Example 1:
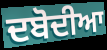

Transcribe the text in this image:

ਦਬੋਦੀਆ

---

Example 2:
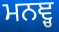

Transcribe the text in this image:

ਮਨਞ੍ਚ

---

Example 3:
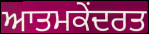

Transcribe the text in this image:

ਆਤਮਕੇਂਦਰਤ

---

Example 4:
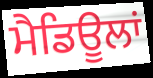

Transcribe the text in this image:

ਮੈਡਿਊਲਾਂ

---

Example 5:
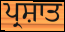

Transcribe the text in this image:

ਪ੍ਰਸ਼ਾਤ